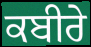
ਕਬੀਰੇ